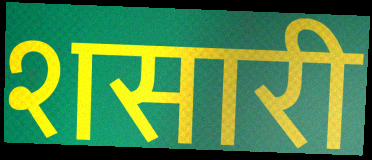
शसारी